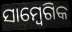
ସାମ୍ବେଗିକ